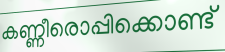
കണ്ണീരൊപ്പിക്കൊണ്ട്